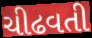
ચીઢવતી